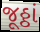
જૂઠ્ઠાં